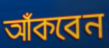
আঁকবেন